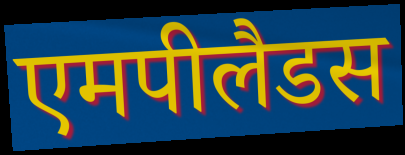
एमपीलैडस